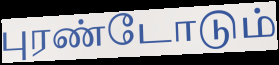
புரண்டோடும்